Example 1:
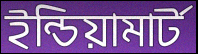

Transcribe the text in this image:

ইন্ডিয়ামার্ট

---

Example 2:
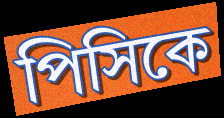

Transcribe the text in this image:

পিসিকে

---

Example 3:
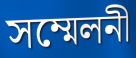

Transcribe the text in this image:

সম্মেলনী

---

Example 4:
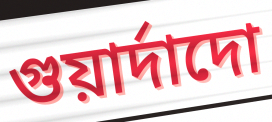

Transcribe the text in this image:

গুয়ার্দাদো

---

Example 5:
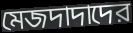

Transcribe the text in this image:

মেজদাদাদের